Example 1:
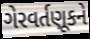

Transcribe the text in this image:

ગેરવર્તણૂકને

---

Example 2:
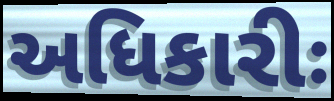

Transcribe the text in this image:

અધિકારીઃ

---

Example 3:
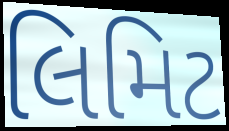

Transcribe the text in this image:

લિમિટ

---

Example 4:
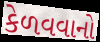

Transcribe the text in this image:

કેળવવાનો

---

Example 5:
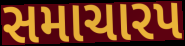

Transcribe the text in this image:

સમાચારપ